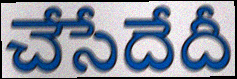
చేసేదేదీ